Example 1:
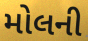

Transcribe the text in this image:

મોલની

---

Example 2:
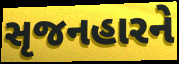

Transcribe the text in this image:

સૃજનહારને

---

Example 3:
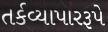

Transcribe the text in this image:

તર્કવ્યાપારરૂપે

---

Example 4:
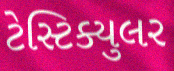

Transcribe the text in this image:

ટેસ્ટિક્યુલર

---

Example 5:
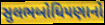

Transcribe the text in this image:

સુલભબોધિપણાનો